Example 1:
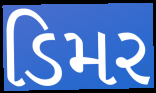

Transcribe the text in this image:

ડિમર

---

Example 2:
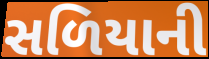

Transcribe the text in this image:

સળિયાની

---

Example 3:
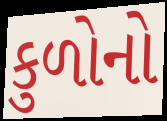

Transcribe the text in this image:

કુળોનો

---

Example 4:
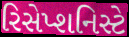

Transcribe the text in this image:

રિસેપ્શનિસ્ટે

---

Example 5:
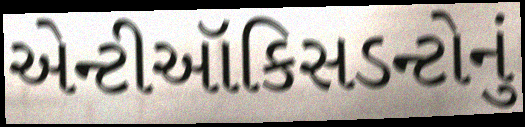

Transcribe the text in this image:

એન્ટીઑકિસડન્ટોનું